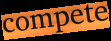
compete